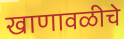
खाणावळीचे